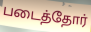
படைத்தோர்